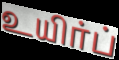
உயிர்ப்